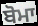
ਬੋਮਾ